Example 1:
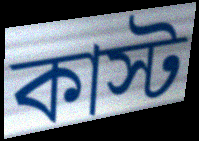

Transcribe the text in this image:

কাস্ট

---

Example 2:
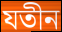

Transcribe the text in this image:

যতীন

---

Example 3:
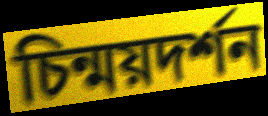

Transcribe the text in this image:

চিন্ময়দর্শন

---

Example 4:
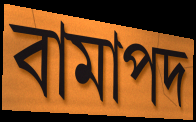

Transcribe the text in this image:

বামাপদ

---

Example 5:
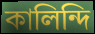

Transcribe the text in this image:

কালিন্দি